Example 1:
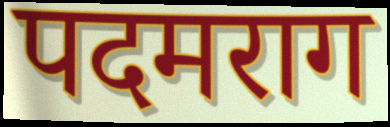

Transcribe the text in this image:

पदमराग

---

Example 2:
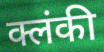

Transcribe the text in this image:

क्लंकी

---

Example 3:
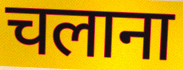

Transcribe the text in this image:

चलाना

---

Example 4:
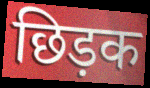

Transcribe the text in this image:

छिड़क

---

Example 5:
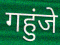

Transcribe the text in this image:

गहुंजे